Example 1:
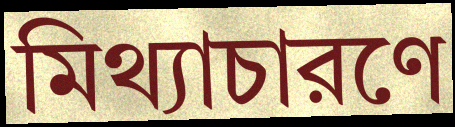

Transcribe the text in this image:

মিথ্যাচারণে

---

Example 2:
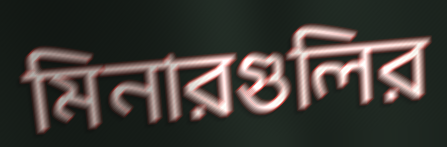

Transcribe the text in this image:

মিনারগুলির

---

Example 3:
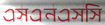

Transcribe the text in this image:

এসএনএসসি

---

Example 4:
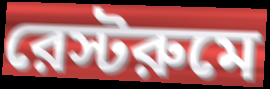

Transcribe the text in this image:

রেস্টরুমে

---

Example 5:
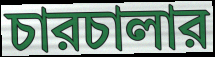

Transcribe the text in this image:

চারচালার